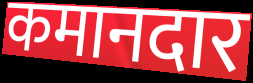
कमानदार